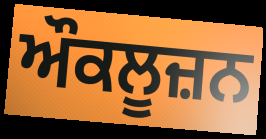
ਔਕਲੂਜ਼ਨ